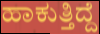
ಹಾಕುತ್ತಿದ್ದೆ